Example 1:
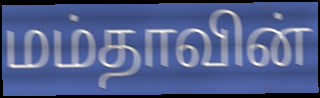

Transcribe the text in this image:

மம்தாவின்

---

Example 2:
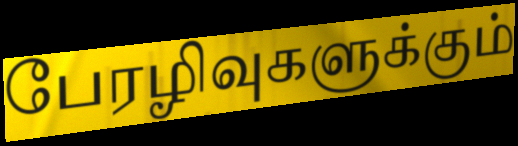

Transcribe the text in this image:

பேரழிவுகளுக்கும்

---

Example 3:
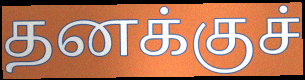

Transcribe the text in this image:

தனக்குச்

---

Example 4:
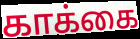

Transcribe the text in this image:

காக்கை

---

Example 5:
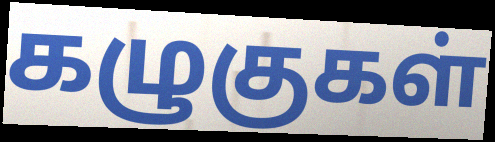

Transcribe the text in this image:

கழுகுகள்